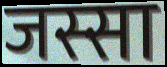
जस्सा